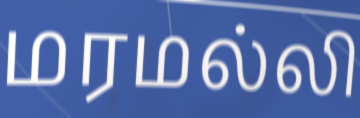
மரமல்லி